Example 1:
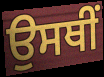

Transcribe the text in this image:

ਉਸਥੀਂ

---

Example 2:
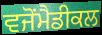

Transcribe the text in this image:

ਵਜੋਂਮੈਡੀਕਲ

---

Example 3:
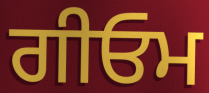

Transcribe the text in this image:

ਗੀਓਮ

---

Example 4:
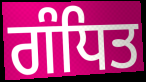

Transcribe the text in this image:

ਗੰਧਿਤ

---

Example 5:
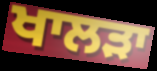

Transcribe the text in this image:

ਖਾਲੜਾ